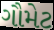
ગૌમેટ